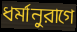
ধর্মানুরাগে